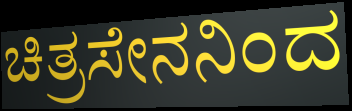
ಚಿತ್ರಸೇನನಿಂದ